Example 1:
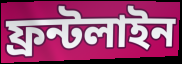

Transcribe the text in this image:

ফ্রন্টলাইন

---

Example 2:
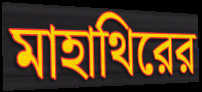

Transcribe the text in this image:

মাহাথিরের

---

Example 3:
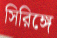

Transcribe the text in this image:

সিরিঙ্গে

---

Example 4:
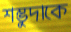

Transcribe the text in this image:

শম্ভুদাকে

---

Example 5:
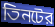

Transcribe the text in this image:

তিনটের